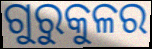
ଗୁରୁକୁଳର